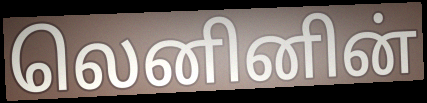
லெனினின்